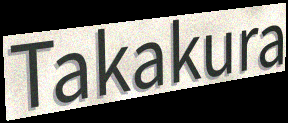
Takakura